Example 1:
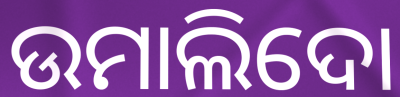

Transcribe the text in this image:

ଉମାଲିଦୋ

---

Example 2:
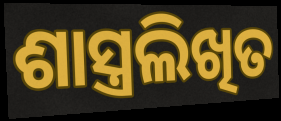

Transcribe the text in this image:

ଶାସ୍ତ୍ରଲିଖିତ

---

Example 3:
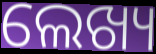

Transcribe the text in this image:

ଲେଖ୍ୟ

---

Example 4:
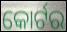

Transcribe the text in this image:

କୋର୍ଟର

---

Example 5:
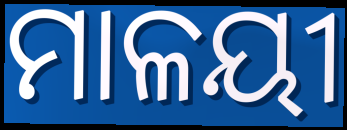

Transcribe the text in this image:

ମାଳୟୀ